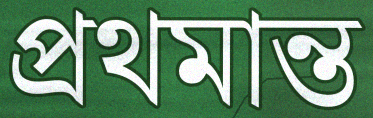
প্ৰথমান্ত